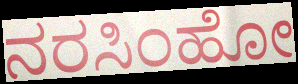
ನರಸಿಂಹೋ